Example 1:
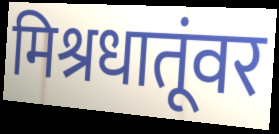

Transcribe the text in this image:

मिश्रधातूंवर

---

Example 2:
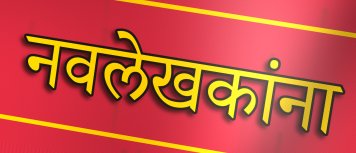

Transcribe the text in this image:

नवलेखकांना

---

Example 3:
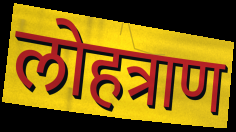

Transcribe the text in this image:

लोहत्राण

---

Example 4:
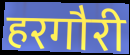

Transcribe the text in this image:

हरगौरी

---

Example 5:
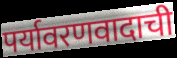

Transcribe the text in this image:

पर्यावरणवादाची